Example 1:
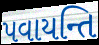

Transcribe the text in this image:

પવાયન્તિ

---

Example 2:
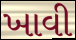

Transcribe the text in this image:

ખાવી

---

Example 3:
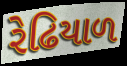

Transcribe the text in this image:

રેઢિયાળ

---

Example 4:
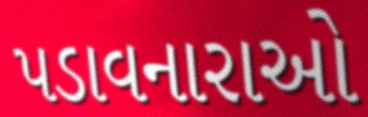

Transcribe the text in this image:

પડાવનારાઓ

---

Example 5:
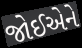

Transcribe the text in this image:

જોઈએને